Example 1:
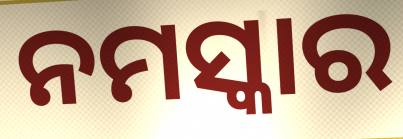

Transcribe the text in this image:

ନମସ୍କାର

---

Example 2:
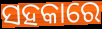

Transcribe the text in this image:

ସହକାରେ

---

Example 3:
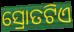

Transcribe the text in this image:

ସ୍ରୋତଟିଏ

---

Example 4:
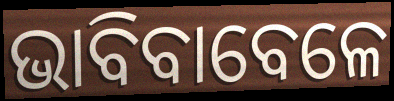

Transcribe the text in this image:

ଭାବିବାବେଳେ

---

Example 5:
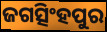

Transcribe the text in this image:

ଜଗତ୍ସିଂହପୁର